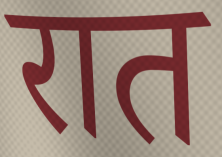
रात